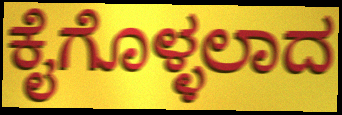
ಕೈಗೊಳ್ಳಲಾದ